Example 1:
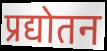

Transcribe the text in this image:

प्रद्योतन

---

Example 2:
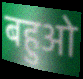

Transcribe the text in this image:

बहुओ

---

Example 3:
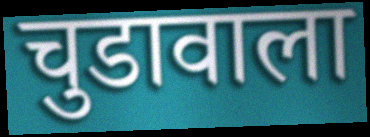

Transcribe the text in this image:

चुडावाला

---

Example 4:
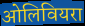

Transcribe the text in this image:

ओलिवियरा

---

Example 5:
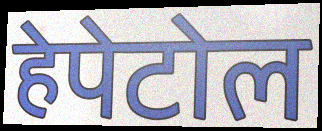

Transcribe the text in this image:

हेपेटोल